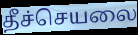
தீச்செயலை